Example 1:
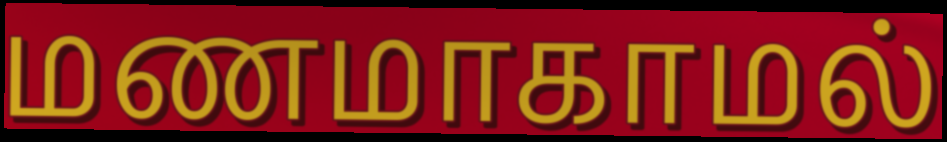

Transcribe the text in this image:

மணமாகாமல்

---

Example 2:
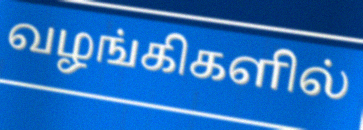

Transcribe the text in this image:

வழங்கிகளில்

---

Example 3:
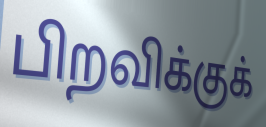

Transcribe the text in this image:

பிறவிக்குக்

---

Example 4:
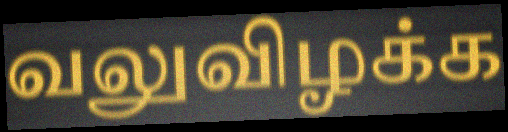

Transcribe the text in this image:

வலுவிழக்க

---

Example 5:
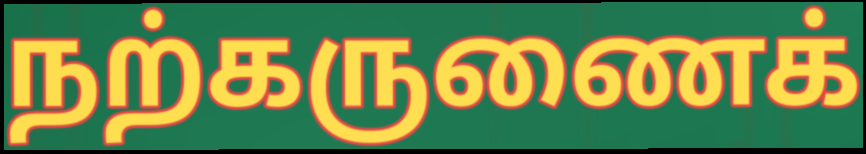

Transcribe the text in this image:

நற்கருணைக்